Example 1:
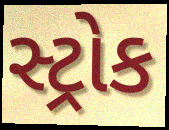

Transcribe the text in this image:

સ્ટ્રોક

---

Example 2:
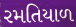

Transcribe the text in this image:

રમતિયાળ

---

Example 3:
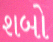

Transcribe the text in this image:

શબો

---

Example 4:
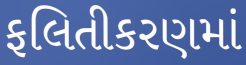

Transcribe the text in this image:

ફલિતીકરણમાં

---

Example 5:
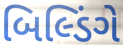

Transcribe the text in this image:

બિલ્ડિંગે